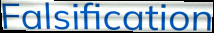
Falsification